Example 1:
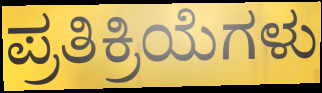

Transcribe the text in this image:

ಪ್ರತಿಕ್ರಿಯೆಗಳು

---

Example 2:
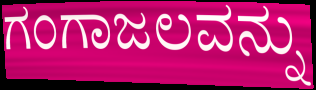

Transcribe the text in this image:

ಗಂಗಾಜಲವನ್ನು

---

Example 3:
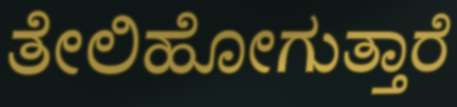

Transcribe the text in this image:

ತೇಲಿಹೋಗುತ್ತಾರೆ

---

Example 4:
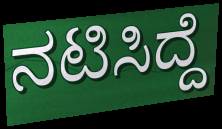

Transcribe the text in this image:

ನಟಿಸಿದ್ದೆ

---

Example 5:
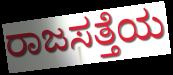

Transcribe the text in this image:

ರಾಜಸತ್ತೆಯ